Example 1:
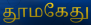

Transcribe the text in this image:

தூமகேது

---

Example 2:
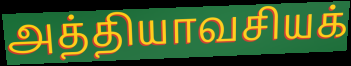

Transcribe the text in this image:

அத்தியாவசியக்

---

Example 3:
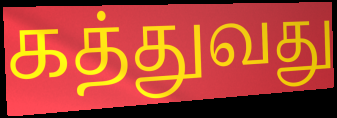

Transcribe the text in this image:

கத்துவது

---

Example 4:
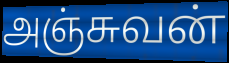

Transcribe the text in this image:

அஞ்சுவன்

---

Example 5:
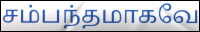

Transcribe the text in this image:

சம்பந்தமாகவே